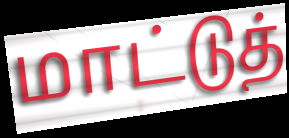
மாட்டுத்